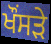
ਖੌਂਸੜੇ